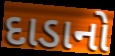
દાડાનો